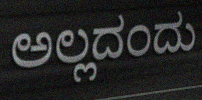
ಅಲ್ಲದಂದು